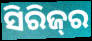
ସିରିଜ୍‌ର